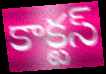
కాక్టస్